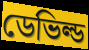
ডেভিল্ড